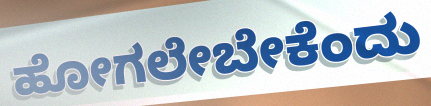
ಹೋಗಲೇಬೇಕೆಂದು